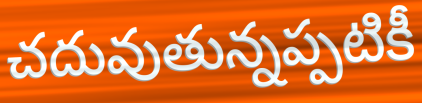
చదువుతున్నప్పటికీ